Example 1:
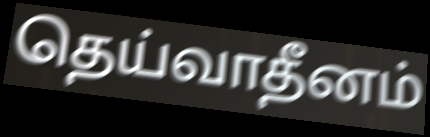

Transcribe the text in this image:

தெய்வாதீனம்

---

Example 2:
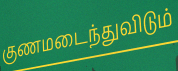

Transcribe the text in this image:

குணமடைந்துவிடும்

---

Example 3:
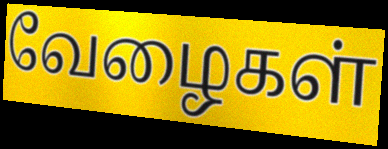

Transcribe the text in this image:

வேழைகள்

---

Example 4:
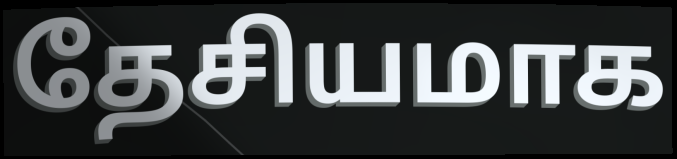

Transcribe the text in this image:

தேசியமாக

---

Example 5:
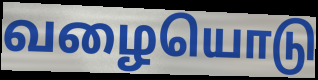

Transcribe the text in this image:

வழையொடு